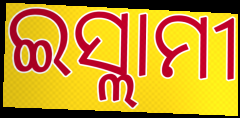
ଇସ୍ଲାମୀ